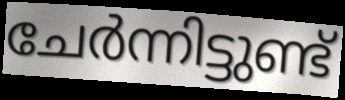
ചേർന്നിട്ടുണ്ട്